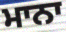
ਮਾਨਾ